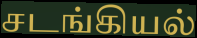
சடங்கியல்